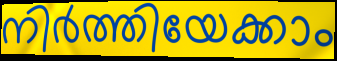
നിർത്തിയേക്കാം